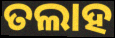
ତଲାହ